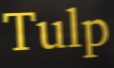
Tulp